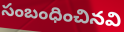
సంబంధించినవి